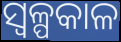
ସ୍ୱଳ୍ପକାଳ